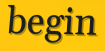
begin